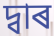
দ্বাৰ